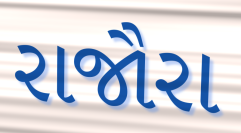
રાજૌરા